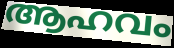
ആഹവം